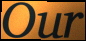
Our